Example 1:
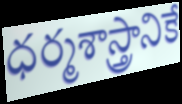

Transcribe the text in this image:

ధర్మశాస్త్రానికే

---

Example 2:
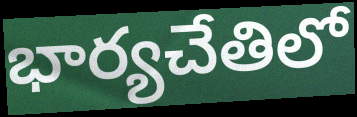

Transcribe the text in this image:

భార్యచేతిలో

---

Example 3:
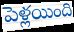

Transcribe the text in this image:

పెళ్లయింది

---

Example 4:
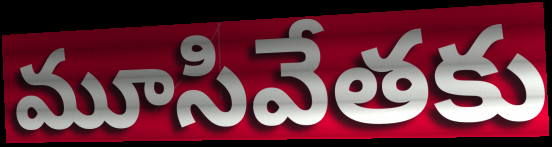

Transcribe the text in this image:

మూసివేతకు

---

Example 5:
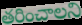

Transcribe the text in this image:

తరించాలని